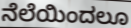
ನೆಲೆಯಿಂದಲೂ